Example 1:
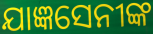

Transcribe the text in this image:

ଯାଜ୍ଞସେନୀଙ୍କ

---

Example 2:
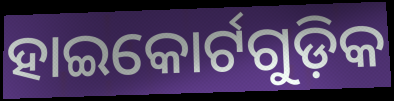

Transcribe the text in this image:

ହାଇକୋର୍ଟଗୁଡ଼ିକ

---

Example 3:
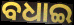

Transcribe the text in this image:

ବଧାଇ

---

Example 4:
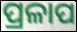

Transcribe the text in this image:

ପ୍ରଳାପ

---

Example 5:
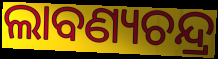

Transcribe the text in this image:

ଲାବଣ୍ୟଚନ୍ଦ୍ର